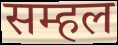
सम्हल